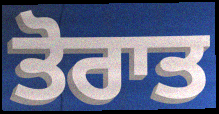
ਤੋਰਾਤ